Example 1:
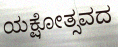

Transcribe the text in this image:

ಯಕ್ಷೋತ್ಸವದ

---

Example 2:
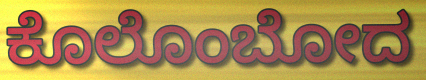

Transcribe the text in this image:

ಕೊಲೊಂಬೋದ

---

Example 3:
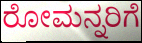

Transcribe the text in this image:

ರೋಮನ್ನರಿಗೆ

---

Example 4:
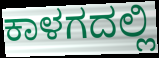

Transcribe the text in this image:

ಕಾಳಗದಲ್ಲಿ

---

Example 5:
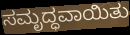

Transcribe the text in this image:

ಸಮೃದ್ಧವಾಯಿತು